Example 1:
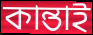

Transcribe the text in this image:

কান্তাই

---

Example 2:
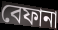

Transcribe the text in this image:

বেফানা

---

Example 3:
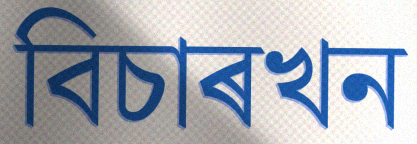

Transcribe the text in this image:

বিচাৰখন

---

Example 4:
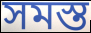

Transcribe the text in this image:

সমস্ত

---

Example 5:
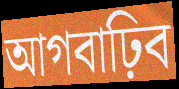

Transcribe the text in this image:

আগবাঢ়িব